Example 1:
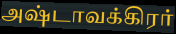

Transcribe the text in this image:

அஷ்டாவக்கிரர்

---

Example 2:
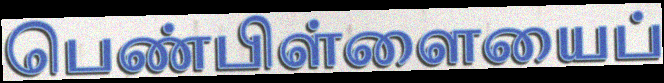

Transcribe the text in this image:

பெண்பிள்ளையைப்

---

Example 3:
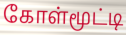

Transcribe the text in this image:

கோள்மூட்டி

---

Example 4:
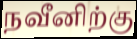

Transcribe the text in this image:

நவீனிற்கு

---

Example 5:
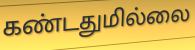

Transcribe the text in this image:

கண்டதுமில்லை